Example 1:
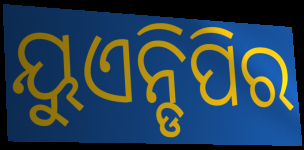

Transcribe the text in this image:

ୟୁଏନ୍ଡିପିର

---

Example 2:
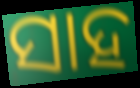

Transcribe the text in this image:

ସାହ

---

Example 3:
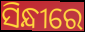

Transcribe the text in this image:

ସିନ୍ଧୀରେ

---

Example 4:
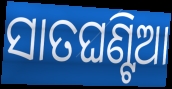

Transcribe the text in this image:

ସାତଘଣ୍ଟିଆ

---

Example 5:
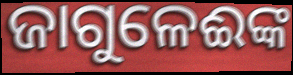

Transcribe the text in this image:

ଜାଗୁଳେଈଙ୍କ